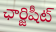
ఛార్జిషీట్